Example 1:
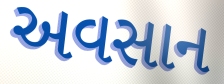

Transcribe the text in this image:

અવસાન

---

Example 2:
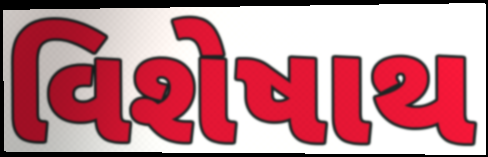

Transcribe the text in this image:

વિશેષાથ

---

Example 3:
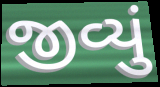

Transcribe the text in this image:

જીવ્યું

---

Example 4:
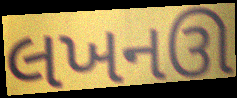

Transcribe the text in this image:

લખનઊ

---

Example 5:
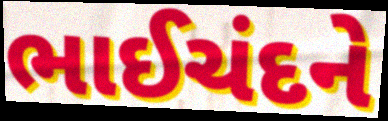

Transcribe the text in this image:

ભાઈચંદને